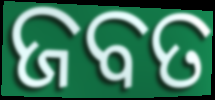
ଜବତ